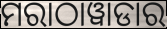
ମରାଠାୱାଡାର